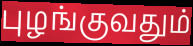
புழங்குவதும்